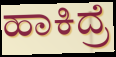
ಹಾಕಿದ್ರೆ